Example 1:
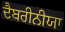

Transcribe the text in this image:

ਦੈਬਰੀਨੀਯਾ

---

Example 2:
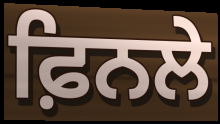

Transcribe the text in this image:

ਫ਼ਿਨਲੇ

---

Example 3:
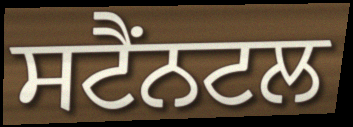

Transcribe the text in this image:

ਸਟੈਂਨਟਲ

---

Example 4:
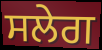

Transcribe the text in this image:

ਸਲੇਗ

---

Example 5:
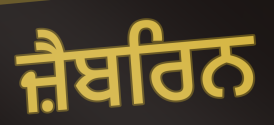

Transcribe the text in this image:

ਜ਼ੈਬਰਿਨ